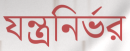
যন্ত্রনির্ভর